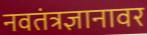
नवतंत्रज्ञानावर